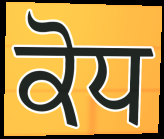
ਕੋਧ